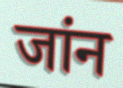
जांन